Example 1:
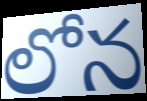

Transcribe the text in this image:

లోన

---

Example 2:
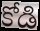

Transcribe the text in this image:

కోడి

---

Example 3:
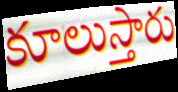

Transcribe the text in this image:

కూలుస్తారు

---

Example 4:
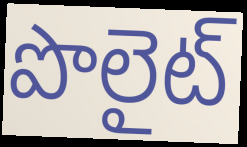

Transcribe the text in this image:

పొలైట్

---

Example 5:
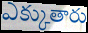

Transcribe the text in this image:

ఎక్కుతారు